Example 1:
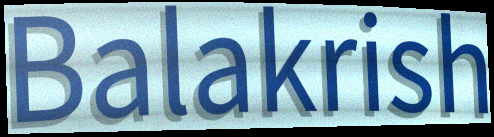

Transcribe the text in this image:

Balakrish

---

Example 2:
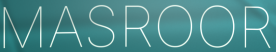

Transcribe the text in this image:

MASROOR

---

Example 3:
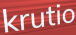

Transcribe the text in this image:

krutio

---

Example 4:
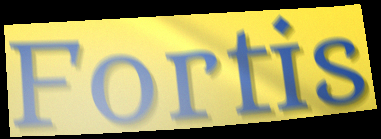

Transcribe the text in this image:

Fortis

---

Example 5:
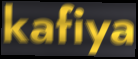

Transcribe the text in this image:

kafiya